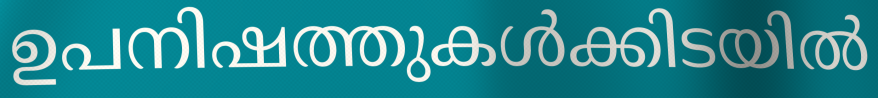
ഉപനിഷത്തുകൾക്കിടയിൽ